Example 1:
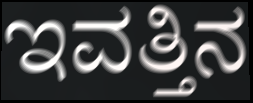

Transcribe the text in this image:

ಇವತ್ತಿನ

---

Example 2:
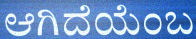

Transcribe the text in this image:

ಆಗಿದೆಯೆಂಬ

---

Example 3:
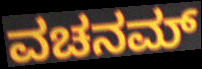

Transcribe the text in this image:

ವಚನಮ್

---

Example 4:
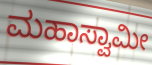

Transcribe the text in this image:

ಮಹಾಸ್ವಾಮೀ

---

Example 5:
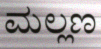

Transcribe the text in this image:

ಮಲ್ಲಣ